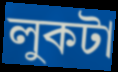
লুকটা